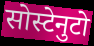
सोस्टेनुटो